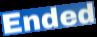
Ended